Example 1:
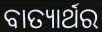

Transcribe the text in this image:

ବାତ୍ୟାର୍ଥର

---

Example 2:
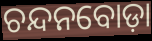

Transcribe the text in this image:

ଚନ୍ଦନବୋଡ଼ା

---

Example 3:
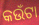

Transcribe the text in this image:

କଉଁଟା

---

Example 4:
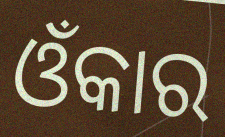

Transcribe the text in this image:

ଓଁକାର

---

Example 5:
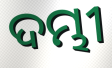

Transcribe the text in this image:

ଦମ୍ଭୀ